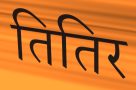
तितिर